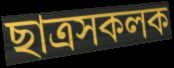
ছাত্ৰসকলক